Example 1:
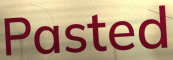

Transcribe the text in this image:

Pasted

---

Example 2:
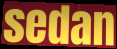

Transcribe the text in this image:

sedan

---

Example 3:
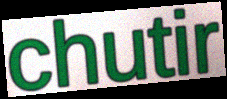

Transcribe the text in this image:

chutir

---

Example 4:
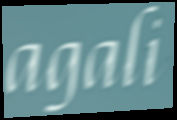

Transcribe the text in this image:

agali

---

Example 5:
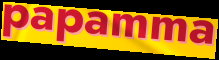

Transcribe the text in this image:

papamma